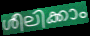
ശീലിക്കാം